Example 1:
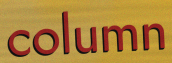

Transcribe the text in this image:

column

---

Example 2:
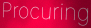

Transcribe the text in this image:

Procuring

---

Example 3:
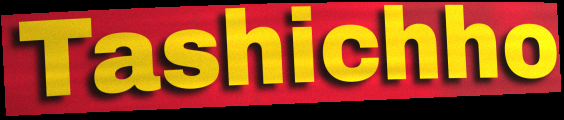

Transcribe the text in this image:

Tashichho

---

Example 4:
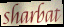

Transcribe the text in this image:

sharbat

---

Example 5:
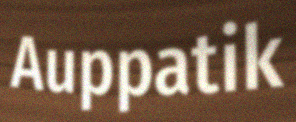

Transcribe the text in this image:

Auppatik